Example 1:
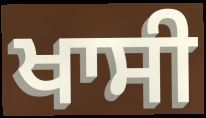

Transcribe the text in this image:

ਖਾਸੀ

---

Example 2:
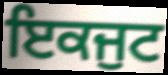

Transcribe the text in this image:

ਇਕਜੁਟ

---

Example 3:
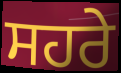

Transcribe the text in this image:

ਸਹਰੇ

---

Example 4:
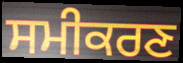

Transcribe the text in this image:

ਸਮੀਕਰਣ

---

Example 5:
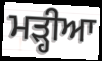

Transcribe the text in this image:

ਮੜ੍ਹੀਆ